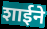
शाईने